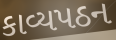
કાવ્યપઠન